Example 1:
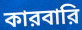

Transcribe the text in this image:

কারবারি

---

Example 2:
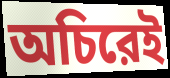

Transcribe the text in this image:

অচিরেই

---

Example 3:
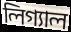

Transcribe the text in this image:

লিগ্যাল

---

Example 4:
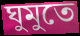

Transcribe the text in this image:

ঘুমুতে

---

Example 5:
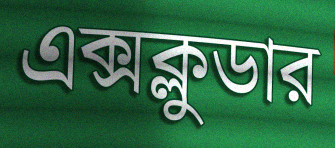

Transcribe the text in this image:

এক্সক্লুডার